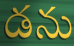
డను